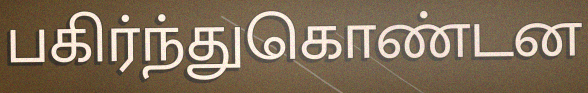
பகிர்ந்துகொண்டன